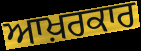
ਆਖ਼ਰਕਾਰ